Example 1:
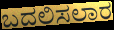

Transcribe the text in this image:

ಬದಲಿಸಲಾರ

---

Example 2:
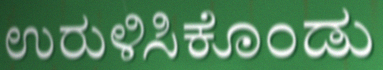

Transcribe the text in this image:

ಉರುಳಿಸಿಕೊಂಡು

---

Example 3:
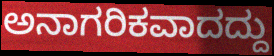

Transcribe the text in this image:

ಅನಾಗರಿಕವಾದದ್ದು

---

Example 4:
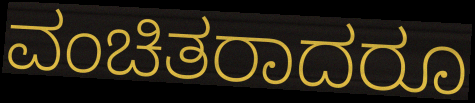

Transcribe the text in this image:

ವಂಚಿತರಾದರೂ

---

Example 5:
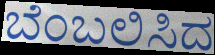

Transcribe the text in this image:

ಬೆಂಬಲಿಸಿದ